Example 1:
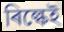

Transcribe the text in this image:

ৰিল্কেই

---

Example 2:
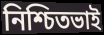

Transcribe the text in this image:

নিশ্চিতভাই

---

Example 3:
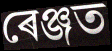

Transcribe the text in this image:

ৰেঞ্জত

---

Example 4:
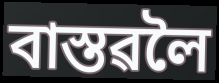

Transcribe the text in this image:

বাস্তৱলৈ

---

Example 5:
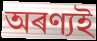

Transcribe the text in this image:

অৰণ্যই